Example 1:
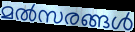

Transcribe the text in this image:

മൽസരങ്ങൾ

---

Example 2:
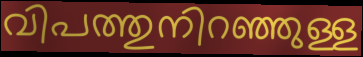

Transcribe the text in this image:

വിപത്തുനിറഞ്ഞുള്ള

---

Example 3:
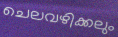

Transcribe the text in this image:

ചെലവഴിക്കലും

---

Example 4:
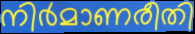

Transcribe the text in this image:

നിർമാണരീതി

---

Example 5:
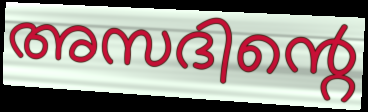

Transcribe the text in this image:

അസദിന്റെ